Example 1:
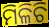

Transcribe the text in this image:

ମିଳିଚି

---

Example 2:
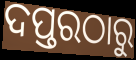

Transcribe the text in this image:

ଦପ୍ତରଠାରୁ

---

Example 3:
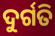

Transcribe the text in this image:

ଦୁର୍ଗତି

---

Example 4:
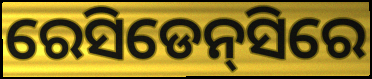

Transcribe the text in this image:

ରେସିଡେନ୍‌ସିରେ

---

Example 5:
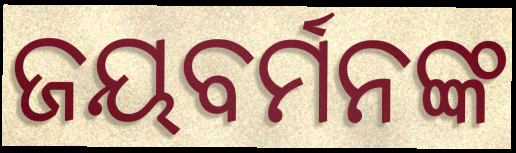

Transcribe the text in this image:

ଜୟବର୍ମନଙ୍କ